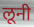
लूनी